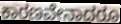
ಕಾರಣವೇನಾದರೂ